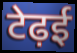
टेढ़ई